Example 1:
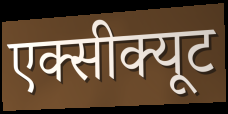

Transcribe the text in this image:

एक्सीक्यूट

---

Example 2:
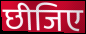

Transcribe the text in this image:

छीजिए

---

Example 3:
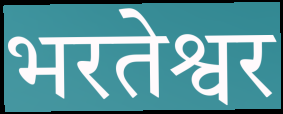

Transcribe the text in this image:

भरतेश्वर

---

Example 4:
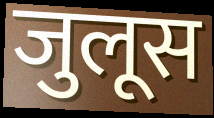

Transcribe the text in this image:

जुलूस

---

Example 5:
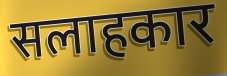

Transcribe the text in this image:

सलाहकार